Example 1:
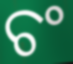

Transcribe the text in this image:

ଚଂ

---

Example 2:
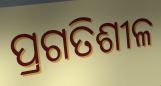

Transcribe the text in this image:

ପ୍ରଗତିଶୀଳ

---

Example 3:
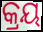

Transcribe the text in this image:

କ୍ରୟ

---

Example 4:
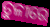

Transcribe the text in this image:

ତୁଳୀରେ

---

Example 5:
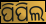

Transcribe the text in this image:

ପିପିଲ